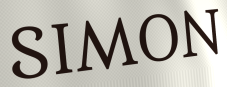
SIMON